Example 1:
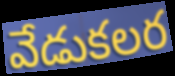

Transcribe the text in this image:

వేడుకలర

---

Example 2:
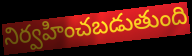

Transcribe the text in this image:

నిర్వహించబడుతుంది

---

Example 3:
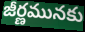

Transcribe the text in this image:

జీర్ణమునకు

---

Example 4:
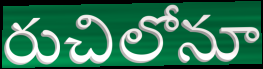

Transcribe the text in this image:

రుచిలోనూ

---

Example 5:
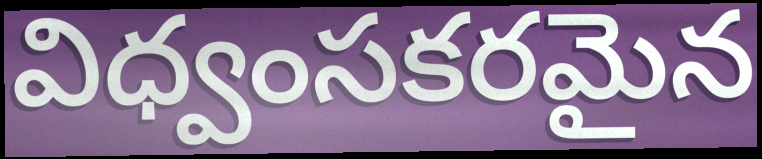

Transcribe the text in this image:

విధ్వంసకరమైన